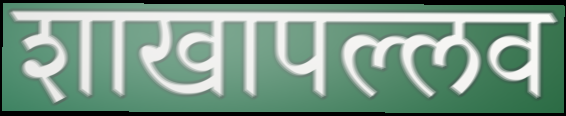
शाखापल्लव